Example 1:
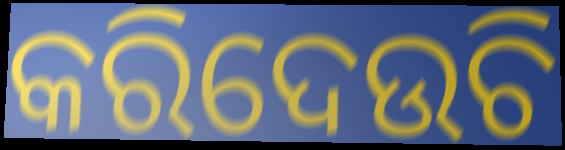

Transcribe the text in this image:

କରିଦେଉଚି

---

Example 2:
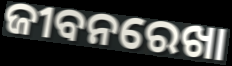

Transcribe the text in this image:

ଜୀବନରେଖା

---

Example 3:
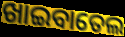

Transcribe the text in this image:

ଖାଇବାତେଲ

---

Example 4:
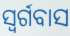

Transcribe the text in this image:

ସ୍ଵର୍ଗବାସ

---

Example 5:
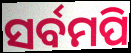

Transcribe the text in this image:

ସର୍ବମପି